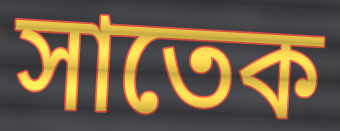
সাতেক